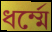
ধর্ম্মে